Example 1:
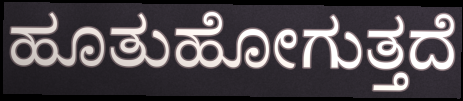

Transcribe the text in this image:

ಹೂತುಹೋಗುತ್ತದೆ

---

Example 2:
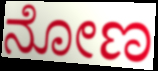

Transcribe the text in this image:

ನೋಣ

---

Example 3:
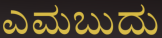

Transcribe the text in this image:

ಎಮಬುದು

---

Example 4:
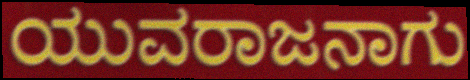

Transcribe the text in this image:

ಯುವರಾಜನಾಗು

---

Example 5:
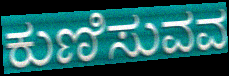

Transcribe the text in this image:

ಕುಣಿಸುವವ